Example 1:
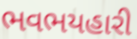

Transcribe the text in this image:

ભવભયહારી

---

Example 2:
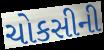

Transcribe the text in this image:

ચોકસીની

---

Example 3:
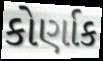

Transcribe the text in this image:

કોર્ણાક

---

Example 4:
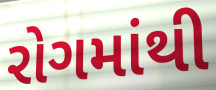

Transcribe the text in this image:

રોગમાંથી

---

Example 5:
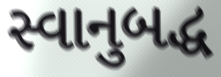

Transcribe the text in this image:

સ્વાનુબદ્ધ